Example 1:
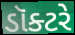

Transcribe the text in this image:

ડૉક્ટરે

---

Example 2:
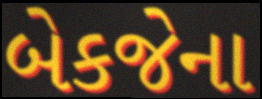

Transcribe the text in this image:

બેકજેના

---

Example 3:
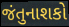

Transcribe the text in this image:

જંતુનાશકો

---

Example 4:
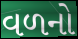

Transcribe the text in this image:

વળનો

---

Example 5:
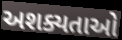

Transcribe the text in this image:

અશક્યતાઓ